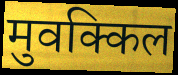
मुवक्किल